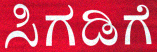
ಸಿಗಡಿಗೆ